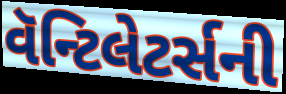
વૅન્ટિલેટર્સની